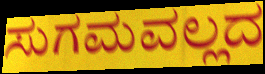
ಸುಗಮವಲ್ಲದ